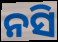
ନସି